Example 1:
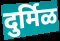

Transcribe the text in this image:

दुर्मिळ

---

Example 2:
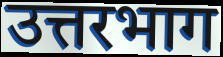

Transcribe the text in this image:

उत्तरभाग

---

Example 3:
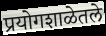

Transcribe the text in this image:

प्रयोगशाळेतले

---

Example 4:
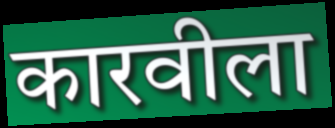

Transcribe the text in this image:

कारवीला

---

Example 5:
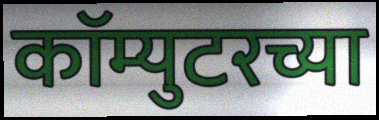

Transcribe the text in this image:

कॉम्युटरच्या